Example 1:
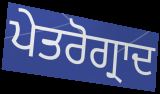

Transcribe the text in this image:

ਪੇਤਰੋਗ੍ਰਾਦ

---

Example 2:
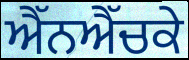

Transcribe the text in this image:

ਐੱਨਐੱਚਕੇ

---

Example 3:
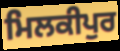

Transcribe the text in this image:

ਮਿਲਕੀਪੁਰ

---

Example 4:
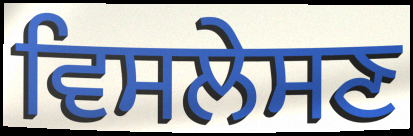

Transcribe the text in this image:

ਵਿਸਲੇਸਣ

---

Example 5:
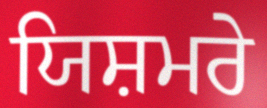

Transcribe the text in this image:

ਯਿਸ਼ਮਰੇ